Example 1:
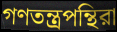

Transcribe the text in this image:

গণতন্ত্রপন্থিরা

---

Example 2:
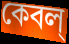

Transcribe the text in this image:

কেবল্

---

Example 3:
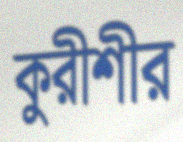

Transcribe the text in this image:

কুরীশীর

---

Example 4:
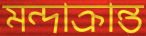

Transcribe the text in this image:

মন্দাক্রান্ত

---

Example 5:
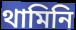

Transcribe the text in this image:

থামিনি